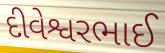
દીવેશ્વરભાઈ